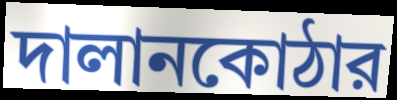
দালানকোঠার